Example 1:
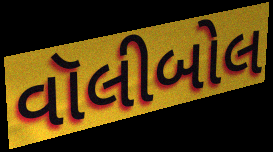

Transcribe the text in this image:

વૉલીબોલ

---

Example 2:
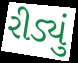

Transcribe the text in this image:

રીડ્યું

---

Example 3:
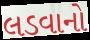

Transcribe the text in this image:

લડવાનો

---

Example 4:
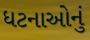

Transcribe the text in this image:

ધટનાઓનું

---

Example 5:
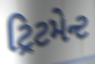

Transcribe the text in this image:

ટ્રિટમેન્ટ